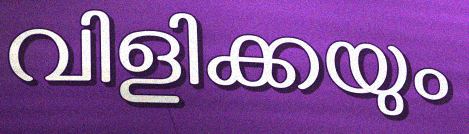
വിളിക്കയും